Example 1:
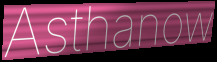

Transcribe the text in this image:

Asthanow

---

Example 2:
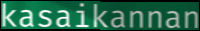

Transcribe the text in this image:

kasaikannan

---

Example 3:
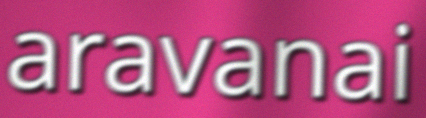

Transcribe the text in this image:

aravanai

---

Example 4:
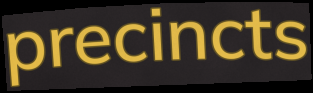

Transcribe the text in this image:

precincts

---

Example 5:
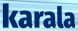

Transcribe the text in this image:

karala